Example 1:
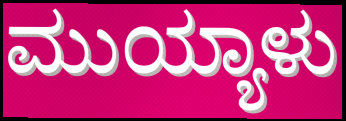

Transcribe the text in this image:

ಮುಯ್ಯಾಳು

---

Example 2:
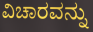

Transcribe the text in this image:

ವಿಚಾರವನ್ನು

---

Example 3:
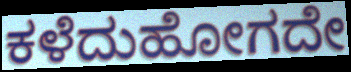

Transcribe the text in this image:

ಕಳೆದುಹೋಗದೇ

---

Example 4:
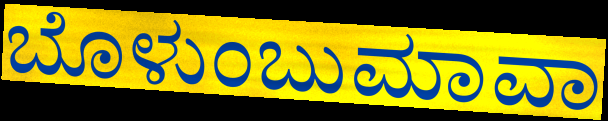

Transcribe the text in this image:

ಬೊಳುಂಬುಮಾವಾ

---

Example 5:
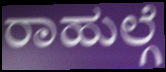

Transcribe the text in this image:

ರಾಹುಲ್ಗೆ